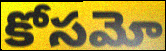
కోసమో